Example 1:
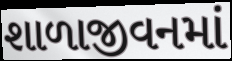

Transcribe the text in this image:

શાળાજીવનમાં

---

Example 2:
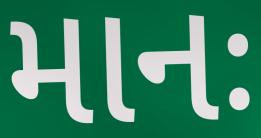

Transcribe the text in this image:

માનઃ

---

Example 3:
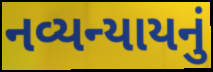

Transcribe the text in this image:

નવ્યન્યાયનું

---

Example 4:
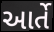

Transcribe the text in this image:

આર્તે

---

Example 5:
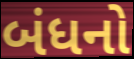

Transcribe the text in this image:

બંધનો